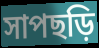
সাপছড়ি